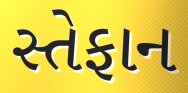
સ્તેફાન